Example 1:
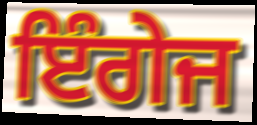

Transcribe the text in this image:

ਇੰਗੇਜ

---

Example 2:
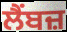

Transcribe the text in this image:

ਲੈਂਬਜ਼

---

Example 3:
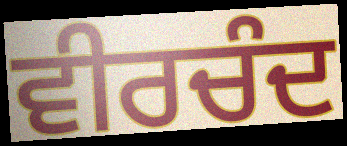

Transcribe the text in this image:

ਵੀਰਚੰਦ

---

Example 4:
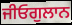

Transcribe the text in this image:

ਜੀਓਗੁਲਾਨ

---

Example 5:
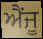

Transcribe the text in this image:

ਐਂਜੂ